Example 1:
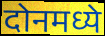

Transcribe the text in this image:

दोनमध्ये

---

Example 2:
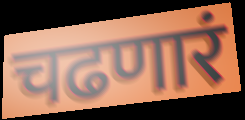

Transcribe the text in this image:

चढणारं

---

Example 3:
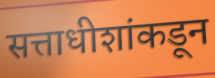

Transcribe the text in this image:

सत्ताधीशांकडून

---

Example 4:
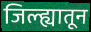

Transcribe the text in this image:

जिल्ह्यातून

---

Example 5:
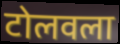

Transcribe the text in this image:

टोलवला